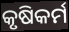
କୃଷିକର୍ମ